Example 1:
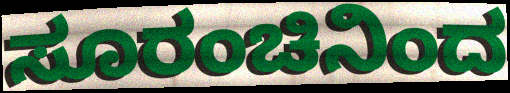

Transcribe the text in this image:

ಸೂರಂಚಿನಿಂದ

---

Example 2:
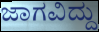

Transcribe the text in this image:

ಜಾಗವಿದ್ದು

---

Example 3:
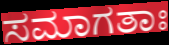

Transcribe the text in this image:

ಸಮಾಗತಾಃ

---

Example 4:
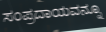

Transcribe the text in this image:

ಸಂಪ್ರದಾಯವನ್ನೂ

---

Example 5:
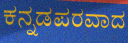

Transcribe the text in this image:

ಕನ್ನಡಪರವಾದ